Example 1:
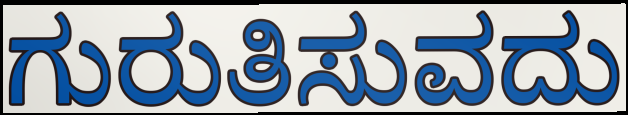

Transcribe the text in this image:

ಗುರುತಿಸುವದು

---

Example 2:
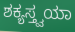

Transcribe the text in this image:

ಶಕ್ಯಸ್ತ್ವಯಾ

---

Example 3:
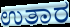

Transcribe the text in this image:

ಉತಾರ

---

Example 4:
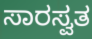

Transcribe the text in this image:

ಸಾರಸ್ವತ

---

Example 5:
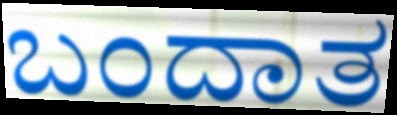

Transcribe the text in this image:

ಬಂದಾತ